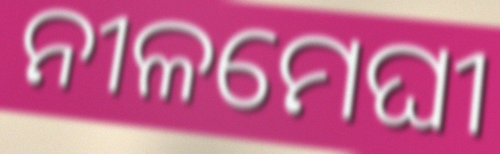
ନୀଳମେଘୀ